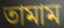
তামাম